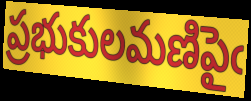
ప్రభుకులమణిపైఁ